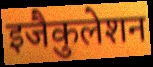
इजैकुलेशन